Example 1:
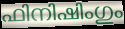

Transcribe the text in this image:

ഫിനിഷിംഗും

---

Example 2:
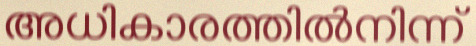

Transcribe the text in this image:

അധികാരത്തിൽനിന്ന്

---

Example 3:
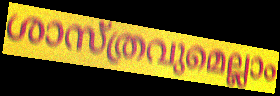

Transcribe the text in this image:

ശാസ്ത്രവുമെല്ലാം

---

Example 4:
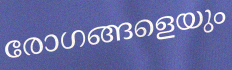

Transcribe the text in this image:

രോഗങ്ങളെയും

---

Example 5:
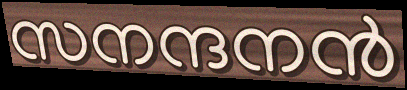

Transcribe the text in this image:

സനന്ദനൻ